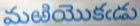
మఱియొకఁడు